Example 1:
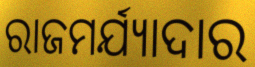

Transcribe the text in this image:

ରାଜମର୍ଯ୍ୟାଦାର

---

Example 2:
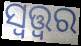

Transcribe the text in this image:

ସ୍ୱତ୍ତ୍ୱର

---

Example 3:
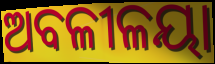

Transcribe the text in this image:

ଅବଳୀଳୟା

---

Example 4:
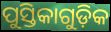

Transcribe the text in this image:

ପୁସ୍ତିକାଗୁଡ଼ିକ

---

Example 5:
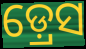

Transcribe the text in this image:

ଡ଼୍ରେସ